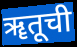
ॠतूची